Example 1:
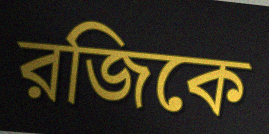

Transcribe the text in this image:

রজিকে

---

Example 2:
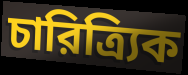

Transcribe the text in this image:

চারিত্র্যিক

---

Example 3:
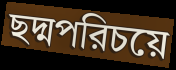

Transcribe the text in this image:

ছদ্মপরিচয়ে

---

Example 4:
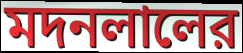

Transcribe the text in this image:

মদনলালের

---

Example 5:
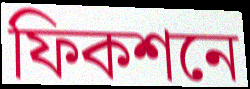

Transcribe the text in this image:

ফিকশনে